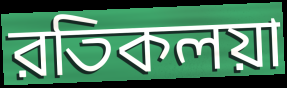
রতিকলয়া